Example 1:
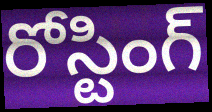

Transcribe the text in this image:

రోస్టింగ్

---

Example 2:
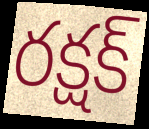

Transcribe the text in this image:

రక్షక్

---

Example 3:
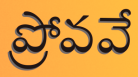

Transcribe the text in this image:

ప్రోవవే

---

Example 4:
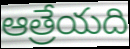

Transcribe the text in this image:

ఆత్రేయది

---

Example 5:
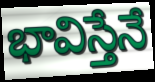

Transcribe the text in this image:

భావిస్తేనే